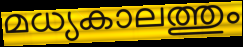
മധ്യകാലത്തും